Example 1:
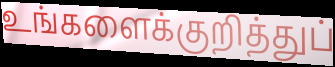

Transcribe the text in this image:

உங்களைக்குறித்துப்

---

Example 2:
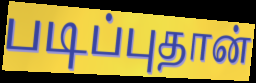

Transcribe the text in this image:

படிப்புதான்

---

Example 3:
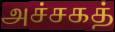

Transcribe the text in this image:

அச்சகத்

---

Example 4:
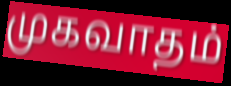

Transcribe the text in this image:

முகவாதம்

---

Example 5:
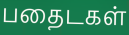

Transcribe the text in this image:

பதைடகள்